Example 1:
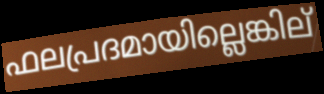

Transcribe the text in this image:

ഫലപ്രദമായില്ലെങ്കില്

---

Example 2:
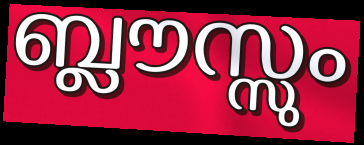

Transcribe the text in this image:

ബ്ലൗസ്സും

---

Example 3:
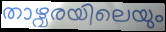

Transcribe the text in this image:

താഴ്വരയിലെയും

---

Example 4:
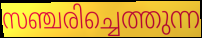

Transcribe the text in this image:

സഞ്ചരിച്ചെത്തുന്ന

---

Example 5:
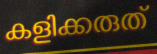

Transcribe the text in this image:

കളിക്കരുത്